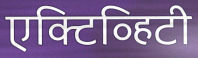
एक्टिव्हिटी